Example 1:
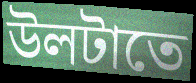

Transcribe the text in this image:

উলটাতে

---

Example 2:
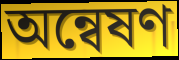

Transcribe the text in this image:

অন্বেষণ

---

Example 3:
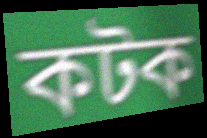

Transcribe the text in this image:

কটক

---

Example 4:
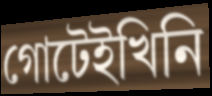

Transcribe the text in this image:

গোটেইখিনি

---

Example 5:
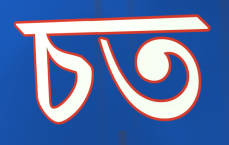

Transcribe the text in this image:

চত